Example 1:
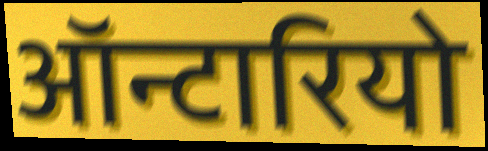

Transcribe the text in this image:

ऑन्टारियो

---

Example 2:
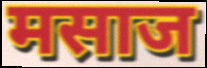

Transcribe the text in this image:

मसाज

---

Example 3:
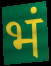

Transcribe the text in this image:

भं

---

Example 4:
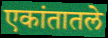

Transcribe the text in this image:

एकांतातले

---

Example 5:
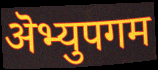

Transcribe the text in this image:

ऄभ्युपगम